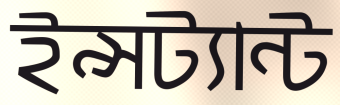
ইন্সট্যান্ট